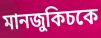
মানজুকিচকে